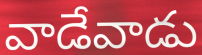
వాడేవాడు